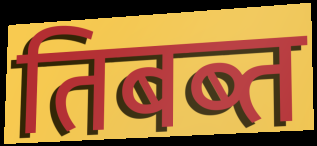
तिबब्त